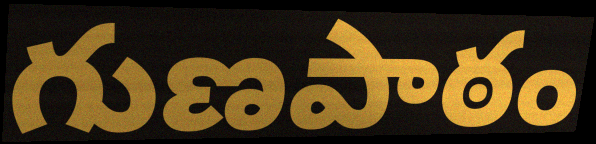
గుణపాఠం